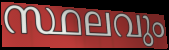
സ്ഥലവും